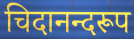
चिदानन्दरूप